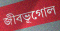
জীবভূগোল